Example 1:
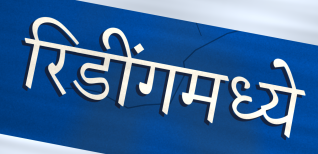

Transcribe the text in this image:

रिडींगमध्ये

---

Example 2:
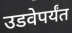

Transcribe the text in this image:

उडवेपर्यंत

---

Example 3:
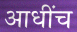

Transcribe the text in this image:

आधींच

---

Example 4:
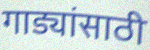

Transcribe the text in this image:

गाड्यांसाठी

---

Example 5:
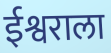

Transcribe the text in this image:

ईश्वराला